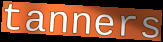
tanners